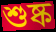
শুষ্ক